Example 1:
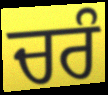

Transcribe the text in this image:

ਚਰੰ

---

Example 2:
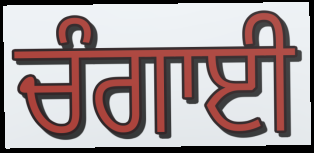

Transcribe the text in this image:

ਚੰਗਾਈ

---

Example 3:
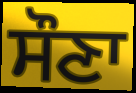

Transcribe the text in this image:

ਸੌਣਾ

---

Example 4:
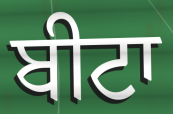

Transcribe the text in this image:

ਬੀਟਾ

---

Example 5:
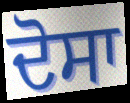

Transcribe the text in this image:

ਦੋਸਾ